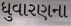
ધુવારણના